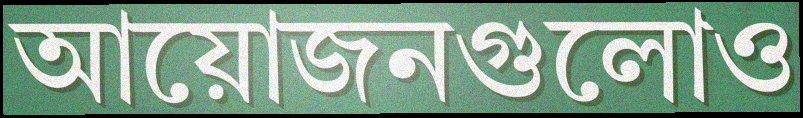
আয়োজনগুলোও